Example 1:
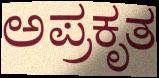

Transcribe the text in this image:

ಅಪ್ರಕೃತ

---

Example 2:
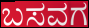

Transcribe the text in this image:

ಬಸವಗ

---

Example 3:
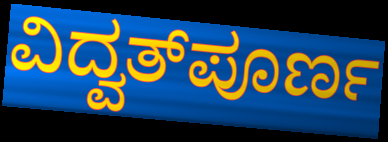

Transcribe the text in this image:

ವಿದ್ವತ್‌ಪೂರ್ಣ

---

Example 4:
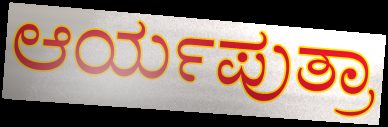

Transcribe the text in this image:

ಆರ್ಯಪುತ್ರಾ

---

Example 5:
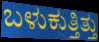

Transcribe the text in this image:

ಬಳುಕುತ್ತಿತ್ತು